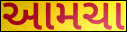
આમચા